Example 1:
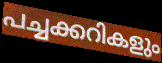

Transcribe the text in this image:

പച്ചക്കറികളും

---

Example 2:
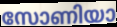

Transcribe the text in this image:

സോണിയാ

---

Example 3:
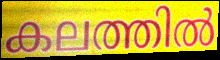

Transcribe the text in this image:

കലത്തിൽ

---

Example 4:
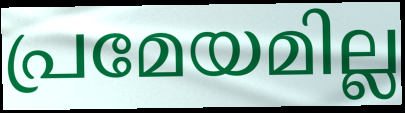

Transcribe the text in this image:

പ്രമേയമില്ല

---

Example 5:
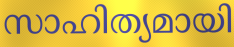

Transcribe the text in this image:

സാഹിത്യമായി